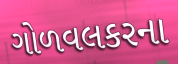
ગોળવલકરના